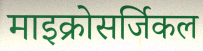
माइक्रोसर्जिकल